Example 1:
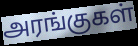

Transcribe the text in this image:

அரங்குகள்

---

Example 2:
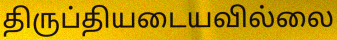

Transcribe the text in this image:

திருப்தியடையவில்லை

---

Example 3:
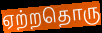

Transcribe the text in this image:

ஏற்றதொரு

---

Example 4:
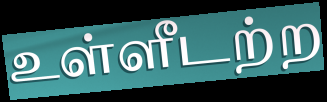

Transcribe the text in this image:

உள்ளீடற்ற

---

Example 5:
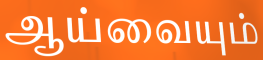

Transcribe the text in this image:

ஆய்வையும்